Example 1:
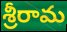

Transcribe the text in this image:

శ్రీరామ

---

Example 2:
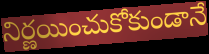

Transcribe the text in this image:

నిర్ణయించుకోకుండానే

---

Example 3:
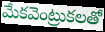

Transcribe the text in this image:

మేకవెంట్రుకలతో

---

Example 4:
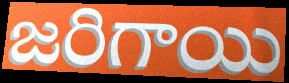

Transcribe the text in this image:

జరిగాయి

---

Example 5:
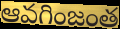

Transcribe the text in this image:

ఆవగింజంత